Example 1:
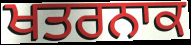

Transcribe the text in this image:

ਖਤਰਨਾਕ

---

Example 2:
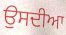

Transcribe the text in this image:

ਉਸਦੀਆ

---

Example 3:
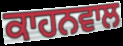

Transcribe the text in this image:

ਕਾਹਨਵਾਲ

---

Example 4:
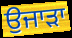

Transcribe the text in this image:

ਉਜਾੜਾ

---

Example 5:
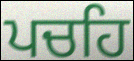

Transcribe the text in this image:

ਪਚਹਿ